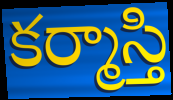
కర్మాస్తి